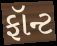
ફૉન્ટ